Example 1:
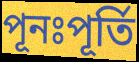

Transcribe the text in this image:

পূনঃপূৰ্তি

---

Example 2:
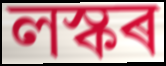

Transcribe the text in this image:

লস্কৰ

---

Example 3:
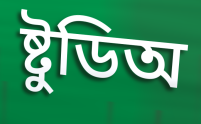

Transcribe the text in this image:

ষ্টুডিঅ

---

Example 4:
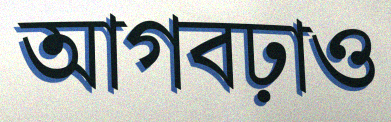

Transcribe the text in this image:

আগবঢ়াও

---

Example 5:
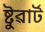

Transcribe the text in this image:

ষ্টুৱাৰ্ট